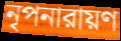
নৃপনারায়ণ